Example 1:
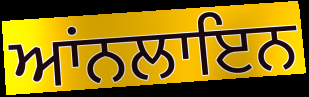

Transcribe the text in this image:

ਆਂਨਲਾਇਨ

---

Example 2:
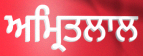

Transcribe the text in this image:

ਅਮ੍ਰਿਤਲਾਲ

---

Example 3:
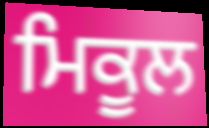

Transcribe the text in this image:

ਮਿਕੂਲ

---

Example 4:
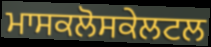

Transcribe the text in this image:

ਮਾਸਕਲੋਸਕੇਲਟਲ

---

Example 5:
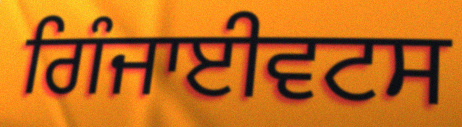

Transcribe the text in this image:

ਗਿੰਜਾਈਵਟਸ